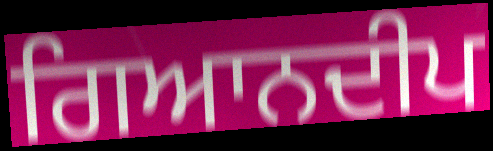
ਗਿਆਨਦੀਪ